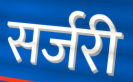
सर्जरी